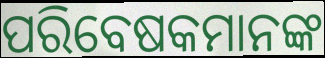
ପରିବେଷକମାନଙ୍କ